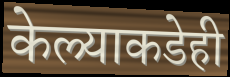
केल्याकडेही